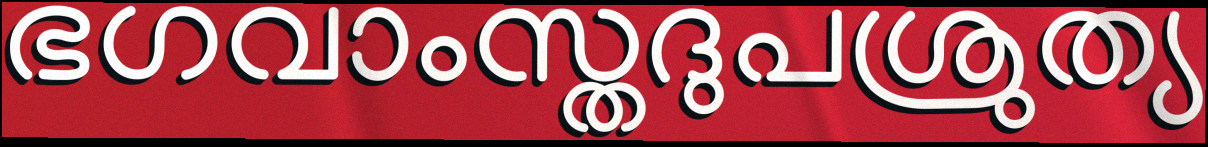
ഭഗവാംസ്തദുപശ്രുത്യ